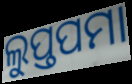
ଲୁପ୍ତପମା